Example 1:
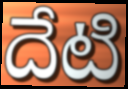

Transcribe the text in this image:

దేటి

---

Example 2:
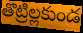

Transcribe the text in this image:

తొట్రిల్లకుండ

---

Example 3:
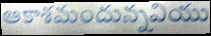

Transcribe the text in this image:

ఆకాశమందున్నవియు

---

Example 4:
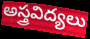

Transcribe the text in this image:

అస్త్రవిద్యలు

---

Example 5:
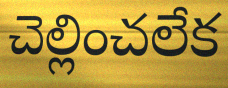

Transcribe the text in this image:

చెల్లించలేక